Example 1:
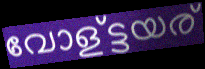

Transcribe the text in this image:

വോള്ട്ടയര്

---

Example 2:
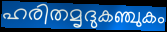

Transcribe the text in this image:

ഹരിതമൃദുകഞ്ചുകം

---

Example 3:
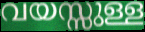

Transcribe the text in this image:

വയസ്സുള്ള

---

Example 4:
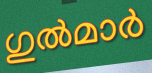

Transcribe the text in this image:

ഗുൽമാർ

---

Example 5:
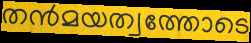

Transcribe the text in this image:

തൻമയത്വത്തോടെ